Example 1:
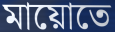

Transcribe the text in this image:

মায়োতে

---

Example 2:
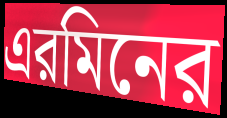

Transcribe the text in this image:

এরমিনের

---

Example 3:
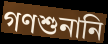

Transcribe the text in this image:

গণশুনানি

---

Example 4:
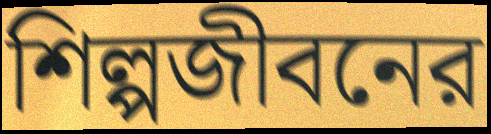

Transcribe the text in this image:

শিল্পজীবনের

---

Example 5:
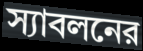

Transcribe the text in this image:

স্যাবলনের